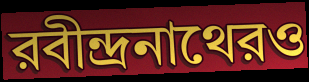
রবীন্দ্রনাথেরও